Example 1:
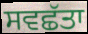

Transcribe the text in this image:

ਸਵਛੱਤਾ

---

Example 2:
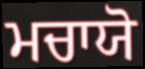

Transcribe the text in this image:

ਮਚਾਯੋ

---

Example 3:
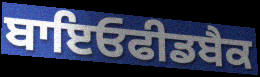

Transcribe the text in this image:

ਬਾਇਓਫੀਡਬੈਕ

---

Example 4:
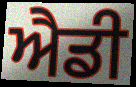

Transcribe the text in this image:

ਐਡੀ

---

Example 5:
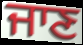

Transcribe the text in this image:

ਜਾਣ